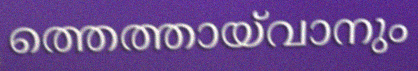
ത്തെത്തായ്‌വാനും